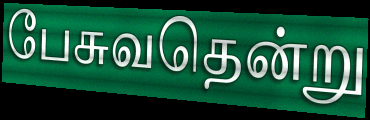
பேசுவதென்று